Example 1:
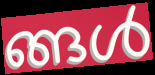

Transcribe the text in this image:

ങ്ങൾ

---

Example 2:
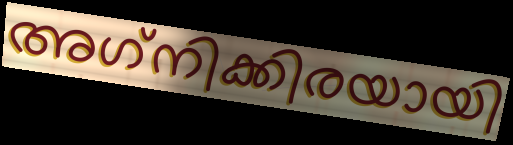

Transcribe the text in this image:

അഗ്‌നിക്കിരയായി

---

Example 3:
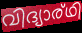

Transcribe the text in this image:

വിദ്യാര്ഥി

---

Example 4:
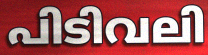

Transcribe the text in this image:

പിടിവലി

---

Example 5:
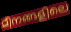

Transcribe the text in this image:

മീനങ്ങളിലെ